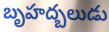
బృహద్బలుడు